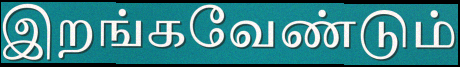
இறங்கவேண்டும்